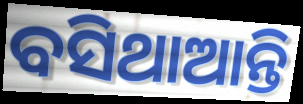
ବସିଥାଆନ୍ତି